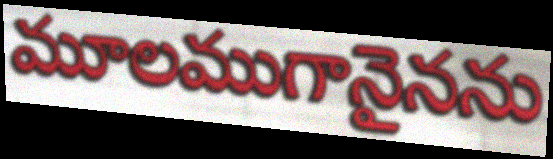
మూలముగానైనను